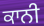
ਕਾਨੀ